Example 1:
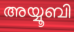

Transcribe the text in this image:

അയ്യൂബി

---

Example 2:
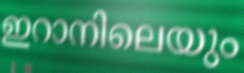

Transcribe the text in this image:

ഇറാനിലെയും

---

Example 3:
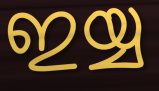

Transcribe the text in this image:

ഇയ്യ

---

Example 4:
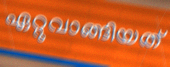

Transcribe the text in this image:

ഏറ്റുവാങ്ങിയത്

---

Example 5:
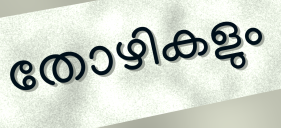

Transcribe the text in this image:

തോഴികളും